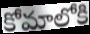
కోమాలోకి